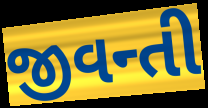
જીવન્તી